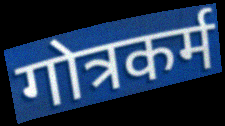
गोत्रकर्म